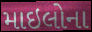
માઇલોના